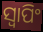
ସ୍ବାପିଂ